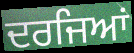
ਦਰਜਿਆਂ